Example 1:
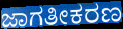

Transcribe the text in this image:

ಜಾಗತೀಕರಣ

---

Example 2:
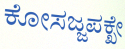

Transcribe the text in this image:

ಕೋಸಜ್ಜಪಕ್ಖೇ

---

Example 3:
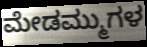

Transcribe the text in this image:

ಮೇಡಮ್ಮುಗಳ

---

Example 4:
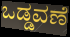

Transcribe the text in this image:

ಒಡ್ಡವಣೆ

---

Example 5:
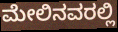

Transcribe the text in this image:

ಮೇಲಿನವರಲ್ಲಿ